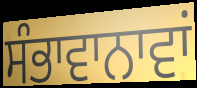
ਸੰਭਾਵਾਨਾਵਾਂ